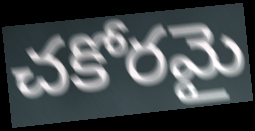
చకోరమై